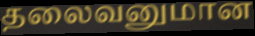
தலைவனுமான